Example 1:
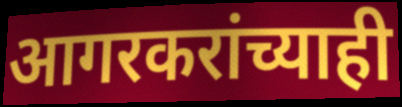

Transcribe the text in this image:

आगरकरांच्याही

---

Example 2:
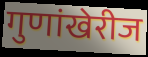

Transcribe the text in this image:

गुणांखेरीज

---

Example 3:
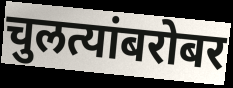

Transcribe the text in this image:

चुलत्यांबरोबर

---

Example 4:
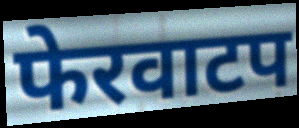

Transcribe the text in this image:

फेरवाटप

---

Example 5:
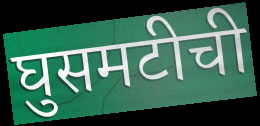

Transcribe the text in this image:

घुसमटीची